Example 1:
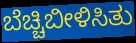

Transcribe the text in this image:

ಬೆಚ್ಚಿಬೀಳಿಸಿತು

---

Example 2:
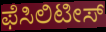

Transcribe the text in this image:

ಫೆಸಿಲಿಟೀಸ್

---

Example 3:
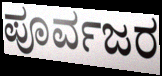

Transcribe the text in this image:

ಪೂರ್ವಜರ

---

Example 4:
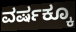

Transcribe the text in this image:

ವರ್ಷಕ್ಕೂ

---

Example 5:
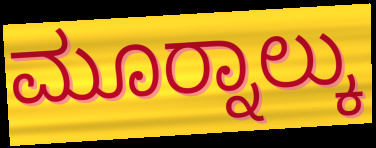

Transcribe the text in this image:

ಮೂರ‍್ನಾಲ್ಕು